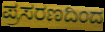
ಪ್ರಸರಣದಿಂದ